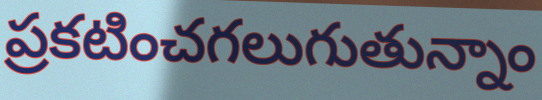
ప్రకటించగలుగుతున్నాం